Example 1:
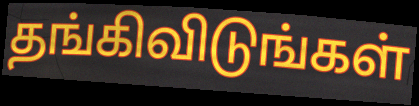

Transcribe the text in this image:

தங்கிவிடுங்கள்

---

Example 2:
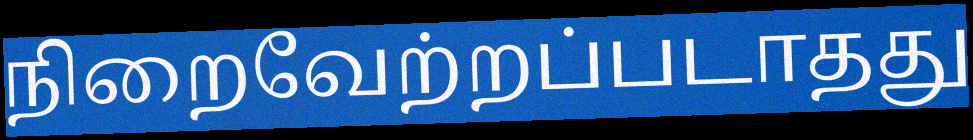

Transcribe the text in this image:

நிறைவேற்றப்படாதது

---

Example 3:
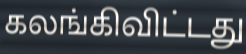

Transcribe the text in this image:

கலங்கிவிட்டது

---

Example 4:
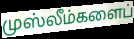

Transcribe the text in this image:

முஸ்லீம்களைப்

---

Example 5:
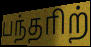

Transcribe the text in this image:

பந்தரிற்